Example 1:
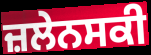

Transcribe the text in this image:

ਜ਼ਲੇਨਸਕੀ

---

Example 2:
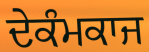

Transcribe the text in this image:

ਦੇਕੰਮਕਾਜ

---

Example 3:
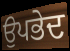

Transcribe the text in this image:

ਉਪਭੇਦ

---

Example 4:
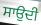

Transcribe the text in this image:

ਸਾਉਦੀ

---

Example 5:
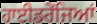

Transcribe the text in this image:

ਹਾਈਡਰੇਂਜਿਆਂ